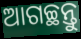
ଆଗଚ୍ଛନ୍ତୁ